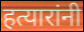
हत्यारांनी